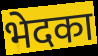
भेदका